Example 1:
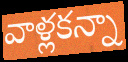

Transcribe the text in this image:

వాళ్లకన్నా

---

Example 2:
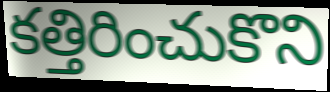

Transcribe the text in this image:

కత్తిరించుకొని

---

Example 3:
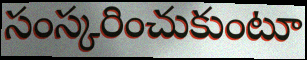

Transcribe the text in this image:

సంస్కరించుకుంటూ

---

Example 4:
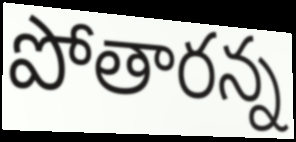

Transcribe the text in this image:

పోతారన్న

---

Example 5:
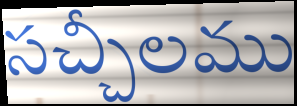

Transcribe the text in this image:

సచ్చీలము